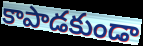
కాపాడకుండా